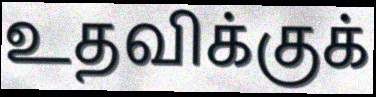
உதவிக்குக்